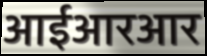
आईआरआर